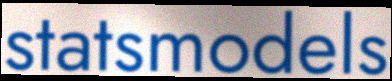
statsmodels